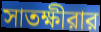
সাতক্ষীরার